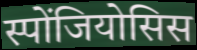
स्पोंजियोसिस